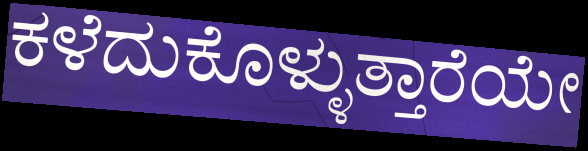
ಕಳೆದುಕೊಳ್ಳುತ್ತಾರೆಯೇ